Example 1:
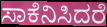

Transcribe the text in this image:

ಸಾಕೆನಿಸಿದರೆ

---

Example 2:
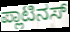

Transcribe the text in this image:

ಪ್ಲಾಟಿನಸ್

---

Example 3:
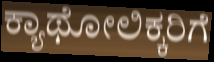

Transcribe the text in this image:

ಕ್ಯಾಥೋಲಿಕ್ಕರಿಗೆ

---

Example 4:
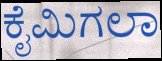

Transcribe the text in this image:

ಕೈಮಿಗಲಾ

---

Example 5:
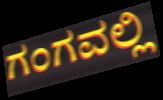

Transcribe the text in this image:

ಗಂಗವಲ್ಲಿ